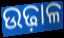
ଉଢ଼ାଳ